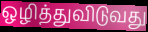
ஒழித்துவிடுவது